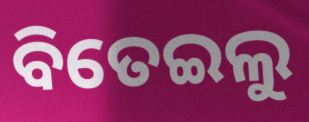
ବିତେଇଲୁ